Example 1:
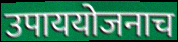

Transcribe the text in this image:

उपाययोजनाच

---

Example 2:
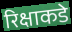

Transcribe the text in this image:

रिक्षाकडे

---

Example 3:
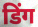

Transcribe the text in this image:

डिंग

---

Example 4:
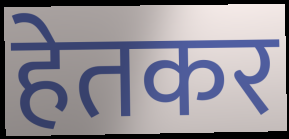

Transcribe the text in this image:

हेतकर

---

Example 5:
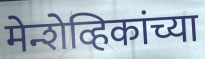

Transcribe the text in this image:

मेन्शेव्हिकांच्या